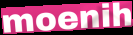
moenih